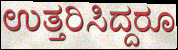
ಉತ್ತರಿಸಿದ್ದರೂ